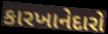
કારખાનેદારો